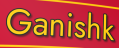
Ganishk